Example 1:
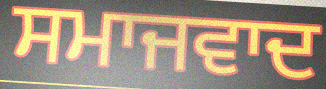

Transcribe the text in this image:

ਸਮਾਜਵਾਦ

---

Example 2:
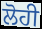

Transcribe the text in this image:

ਲੋਹੀ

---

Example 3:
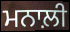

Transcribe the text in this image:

ਮਨਾਲ਼ੀ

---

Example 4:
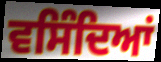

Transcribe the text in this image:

ਵਸਿੰਦਿਆਂ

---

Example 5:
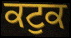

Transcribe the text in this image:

ਕਟੁਕ